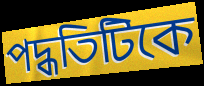
পদ্ধতিটিকে